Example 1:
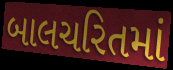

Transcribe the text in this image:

બાલચરિતમાં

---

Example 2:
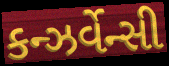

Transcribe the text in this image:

કન્ઝર્વેન્સી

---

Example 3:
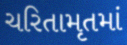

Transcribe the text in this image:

ચરિતામૃતમાં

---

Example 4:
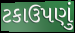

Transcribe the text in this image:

ટકાઉપણું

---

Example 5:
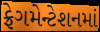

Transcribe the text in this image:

ફ્રેગમેન્ટેશનમાં